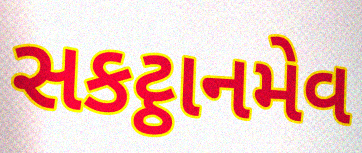
સકટ્ઠાનમેવ